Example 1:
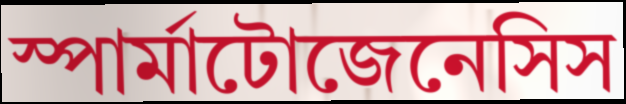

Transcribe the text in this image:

স্পার্মাটোজেনেসিস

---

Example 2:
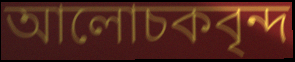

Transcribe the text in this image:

আলোচকবৃন্দ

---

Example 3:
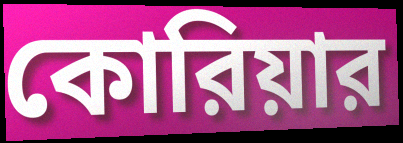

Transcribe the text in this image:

কোরিয়ার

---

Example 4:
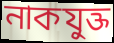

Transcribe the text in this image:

নাকযুক্ত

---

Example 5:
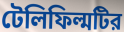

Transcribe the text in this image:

টেলিফিল্মটির